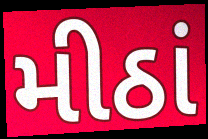
મીઠાં